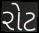
રોટ